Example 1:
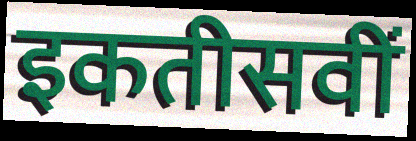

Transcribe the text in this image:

इकतीसवीं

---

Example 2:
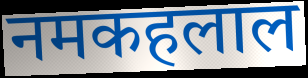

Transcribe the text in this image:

नमकहलाल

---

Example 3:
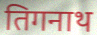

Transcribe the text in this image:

तिगनाथ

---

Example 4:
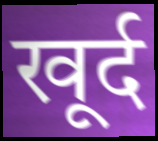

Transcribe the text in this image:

खूर्द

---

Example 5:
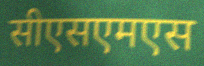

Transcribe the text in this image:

सीएसएमएस